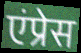
एंप्रेस